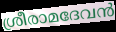
ശ്രീരാമദേവൻ